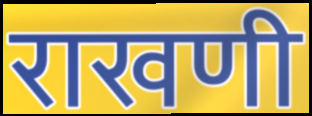
राखणी